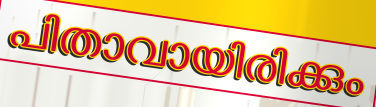
പിതാവായിരിക്കും